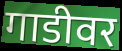
गाडीवर